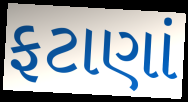
ફટાણાં